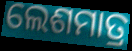
ଲେଶମାତ୍ର